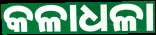
କଳାଧଳା